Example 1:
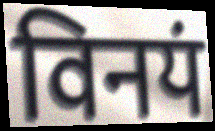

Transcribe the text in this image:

विनयं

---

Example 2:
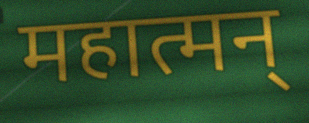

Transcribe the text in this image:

महात्मन्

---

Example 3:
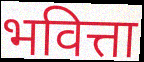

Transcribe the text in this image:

भवित्ता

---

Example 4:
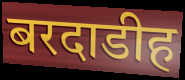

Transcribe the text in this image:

बरदाडीह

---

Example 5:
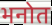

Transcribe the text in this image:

भनोत